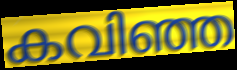
കവിഞ്ഞ